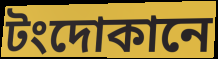
টংদোকানে